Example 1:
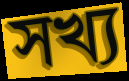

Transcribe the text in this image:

সখ্য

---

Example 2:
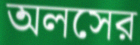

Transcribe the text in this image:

অলসের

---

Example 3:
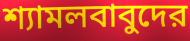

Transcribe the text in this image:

শ্যামলবাবুদের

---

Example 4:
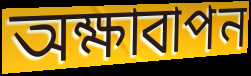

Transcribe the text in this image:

অক্ষাবাপন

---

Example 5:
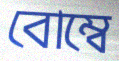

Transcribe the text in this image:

বোম্বে